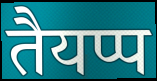
तैयप्प